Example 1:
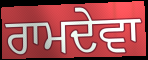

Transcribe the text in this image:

ਰਾਮਦੇਵਾ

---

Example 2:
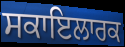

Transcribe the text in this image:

ਸਕਾਇਲਾਰਕ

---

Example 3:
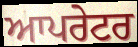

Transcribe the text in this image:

ਆਪਰੇਟਰ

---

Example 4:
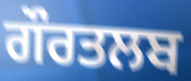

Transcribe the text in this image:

ਗੌਰਤਲਬ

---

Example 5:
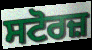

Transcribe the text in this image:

ਸਟੋਰਜ਼